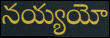
నయ్యయో